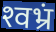
श्वभ्रं